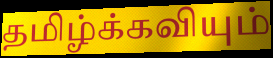
தமிழ்க்கவியும்